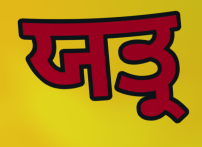
ਯਤ੍ਰ